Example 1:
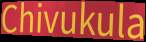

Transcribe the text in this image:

Chivukula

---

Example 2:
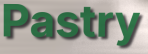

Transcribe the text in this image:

Pastry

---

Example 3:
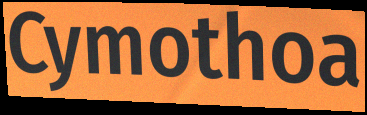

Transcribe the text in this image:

Cymothoa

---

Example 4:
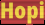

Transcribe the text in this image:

Hopi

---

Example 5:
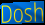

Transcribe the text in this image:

Dosh